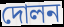
দোলন